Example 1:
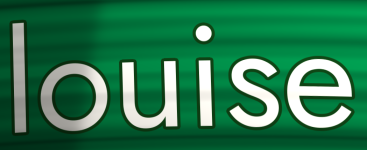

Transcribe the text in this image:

louise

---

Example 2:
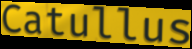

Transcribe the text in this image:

Catullus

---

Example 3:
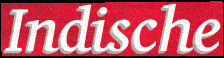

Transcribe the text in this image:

Indische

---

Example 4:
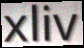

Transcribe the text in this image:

xliv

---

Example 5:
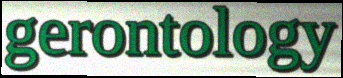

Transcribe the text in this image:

gerontology